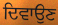
ਦਿਵਾਉਣ